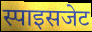
स्‍पाइसजेट